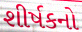
શીર્ષકનો